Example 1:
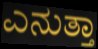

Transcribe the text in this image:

ಎನುತ್ತಾ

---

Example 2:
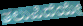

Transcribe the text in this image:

ತಲುಪಿದೆಯೇ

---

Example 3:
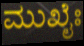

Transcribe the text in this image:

ಮುಖೈಃ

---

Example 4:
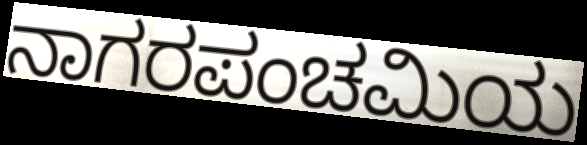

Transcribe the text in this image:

ನಾಗರಪಂಚಮಿಯ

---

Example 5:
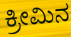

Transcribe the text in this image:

ಕ್ರೀಮಿನ